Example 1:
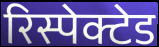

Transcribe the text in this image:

रिस्पेक्टेड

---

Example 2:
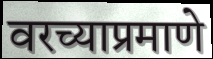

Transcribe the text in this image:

वरच्याप्रमाणे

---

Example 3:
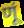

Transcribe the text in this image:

णूं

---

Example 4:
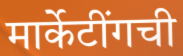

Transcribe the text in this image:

मार्केटींगची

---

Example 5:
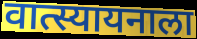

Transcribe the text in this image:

वात्स्यायनाला